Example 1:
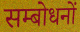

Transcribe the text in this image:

सम्बोधनों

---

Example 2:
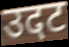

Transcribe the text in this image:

उदट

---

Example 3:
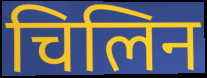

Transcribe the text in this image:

चिलिन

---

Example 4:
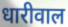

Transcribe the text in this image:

धारीवाल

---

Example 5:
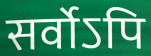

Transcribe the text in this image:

सर्वोऽपि